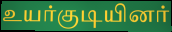
உயர்குடியினர்